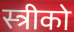
स्त्रीको